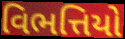
વિભત્તિયો